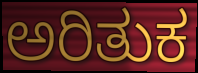
ಅರಿತುಕ